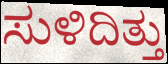
ಸುಳಿದಿತ್ತು